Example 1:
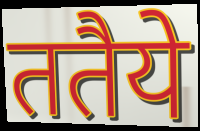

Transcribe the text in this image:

ततैये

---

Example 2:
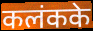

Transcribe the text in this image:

कलंकके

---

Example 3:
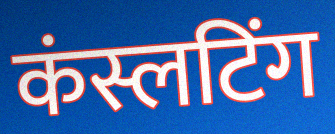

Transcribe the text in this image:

कंस्लटिंग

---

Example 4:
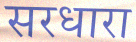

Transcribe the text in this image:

सरधारा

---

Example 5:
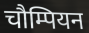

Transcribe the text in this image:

चौम्पियन